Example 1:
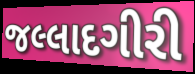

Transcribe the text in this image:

જલ્લાદગીરી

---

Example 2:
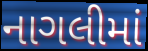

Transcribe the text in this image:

નાગલીમાં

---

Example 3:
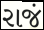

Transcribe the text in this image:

રાજં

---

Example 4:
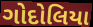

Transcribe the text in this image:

ગોદોલિયા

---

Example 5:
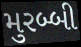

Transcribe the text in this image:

મુરબ્બી